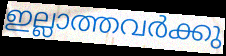
ഇല്ലാത്തവർക്കു